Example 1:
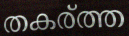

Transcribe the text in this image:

തകര്ത്ത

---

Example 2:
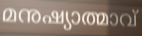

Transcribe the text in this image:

മനുഷ്യാത്മാവ്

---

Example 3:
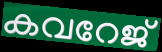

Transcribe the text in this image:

കവറേജ്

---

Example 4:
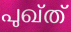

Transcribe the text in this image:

പുഖ്ത്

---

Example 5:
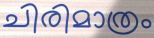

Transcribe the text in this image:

ചിരിമാത്രം